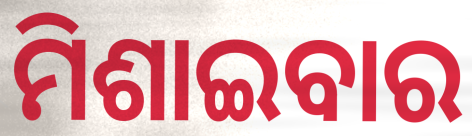
ମିଶାଇବାର